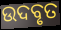
ଉଦବୃତ